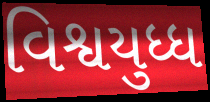
વિશ્વયુધ્ધ